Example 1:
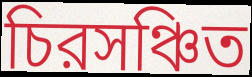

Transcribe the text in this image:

চিরসঞ্চিত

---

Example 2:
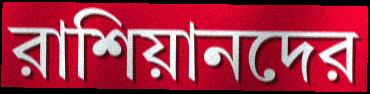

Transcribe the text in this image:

রাশিয়ানদের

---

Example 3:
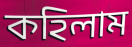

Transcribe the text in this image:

কহিলাম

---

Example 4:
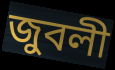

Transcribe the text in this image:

জুবলী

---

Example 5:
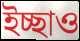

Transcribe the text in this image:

ইচ্ছাও